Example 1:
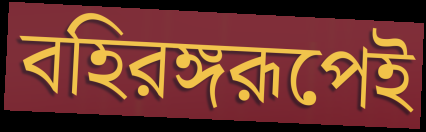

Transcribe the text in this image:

বহিরঙ্গরূপেই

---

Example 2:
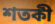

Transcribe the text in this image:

শতকী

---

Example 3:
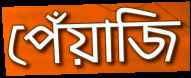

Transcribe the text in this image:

পেঁয়াজি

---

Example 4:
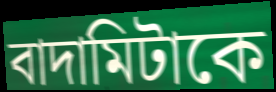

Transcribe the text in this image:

বাদামিটাকে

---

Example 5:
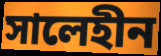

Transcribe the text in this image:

সালেহীন